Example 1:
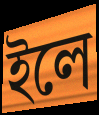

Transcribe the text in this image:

ইলে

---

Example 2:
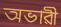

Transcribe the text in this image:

অভাৱী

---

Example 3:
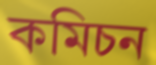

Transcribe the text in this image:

কমিচন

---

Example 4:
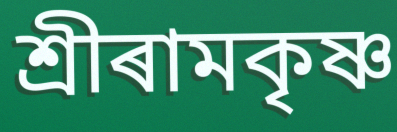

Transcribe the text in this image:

শ্ৰীৰামকৃষ্ণ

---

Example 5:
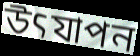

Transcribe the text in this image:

উৎযাপন